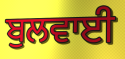
ਬੁਲਵਾਈ